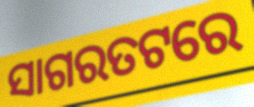
ସାଗରତଟରେ